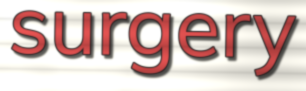
surgery